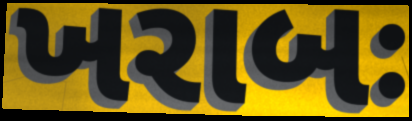
ખરાબઃ